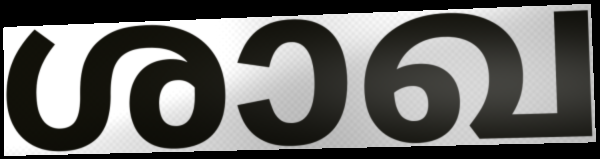
ശാഖ